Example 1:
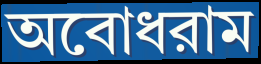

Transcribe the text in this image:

অবোধরাম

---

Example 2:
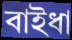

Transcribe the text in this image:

বাইধা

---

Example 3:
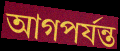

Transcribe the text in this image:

আগপর্যন্ত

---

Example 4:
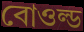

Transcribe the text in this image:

বোওল্ড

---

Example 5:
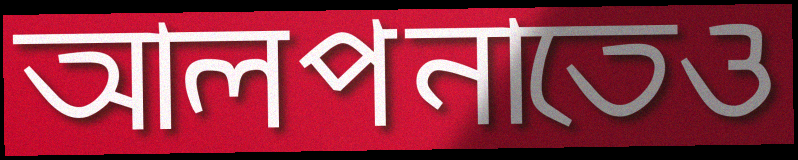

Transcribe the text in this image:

আলপনাতেও